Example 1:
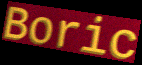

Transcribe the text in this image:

Boric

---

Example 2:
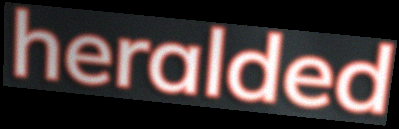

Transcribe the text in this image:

heralded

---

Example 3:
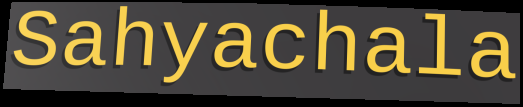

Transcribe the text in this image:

Sahyachala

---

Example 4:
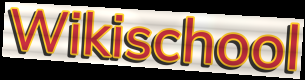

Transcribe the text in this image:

Wikischool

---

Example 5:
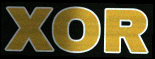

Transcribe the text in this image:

XOR